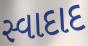
સ્વાદાદ